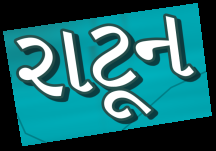
રાટૂન